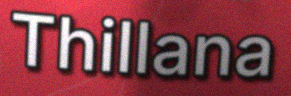
Thillana